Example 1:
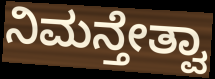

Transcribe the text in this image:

ನಿಮನ್ತೇತ್ವಾ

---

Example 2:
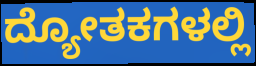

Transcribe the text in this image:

ದ್ಯೋತಕಗಳಲ್ಲಿ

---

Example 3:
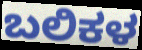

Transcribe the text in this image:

ಬಲಿಕಳ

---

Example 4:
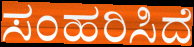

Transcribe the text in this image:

ಸಂಹರಿಸಿದೆ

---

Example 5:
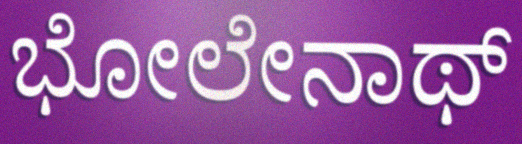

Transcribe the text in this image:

ಭೋಲೇನಾಥ್